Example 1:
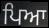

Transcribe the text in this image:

ਪਿਆ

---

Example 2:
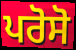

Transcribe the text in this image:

ਪਰੋਸੋ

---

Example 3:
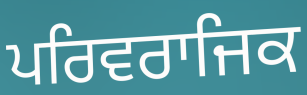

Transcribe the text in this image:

ਪਰਿਵਰਾਜਿਕ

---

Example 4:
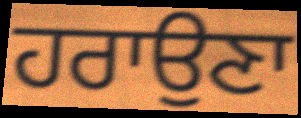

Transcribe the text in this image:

ਹਰਾਉਣਾ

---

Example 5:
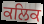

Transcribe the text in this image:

ਕਲਿਕ